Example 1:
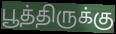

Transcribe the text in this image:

பூத்திருக்கு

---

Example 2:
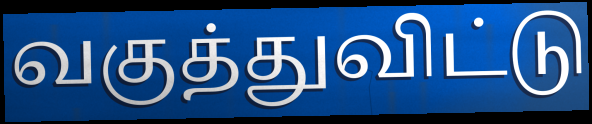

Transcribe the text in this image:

வகுத்துவிட்டு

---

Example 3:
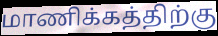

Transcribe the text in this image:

மாணிக்கத்திற்கு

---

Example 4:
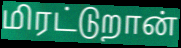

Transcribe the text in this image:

மிரட்டுறான்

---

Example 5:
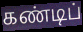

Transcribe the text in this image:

கண்டிப்